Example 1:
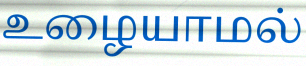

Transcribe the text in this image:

உழையாமல்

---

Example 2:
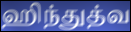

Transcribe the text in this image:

ஹிந்துத்வ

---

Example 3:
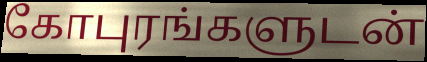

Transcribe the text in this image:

கோபுரங்களுடன்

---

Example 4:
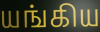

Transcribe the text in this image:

யங்கிய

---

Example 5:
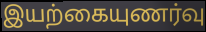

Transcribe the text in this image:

இயற்கையுணர்வு